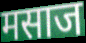
मसाज